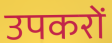
उपकरों